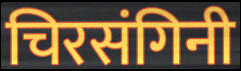
चिरसंगिनी